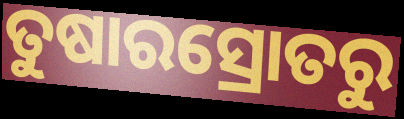
ତୁଷାରସ୍ରୋତରୁ